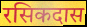
रसिकदास